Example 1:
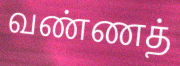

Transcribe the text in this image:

வண்ணத்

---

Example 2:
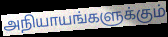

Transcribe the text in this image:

அநியாயங்களுக்கும்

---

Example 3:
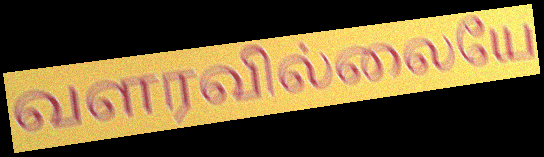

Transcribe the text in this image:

வளரவில்லையே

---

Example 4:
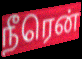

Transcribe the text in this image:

நீரென்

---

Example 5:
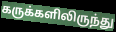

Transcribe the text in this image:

கருக்களிலிருந்து